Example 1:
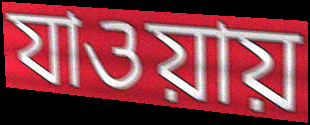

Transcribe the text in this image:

যাওয়ায়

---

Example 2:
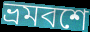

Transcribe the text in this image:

ভ্রমবশে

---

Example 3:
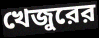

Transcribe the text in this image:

খেজুরের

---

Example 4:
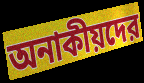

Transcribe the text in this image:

অনাকীয়দের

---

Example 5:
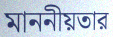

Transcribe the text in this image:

মাননীয়তার